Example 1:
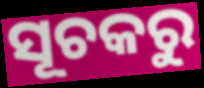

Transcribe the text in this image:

ସୂଚକରୁ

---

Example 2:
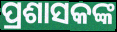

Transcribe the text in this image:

ପ୍ରଶାସକଙ୍କ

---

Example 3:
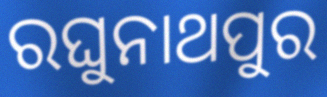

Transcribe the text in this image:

ରଘୁନାଥପୁର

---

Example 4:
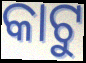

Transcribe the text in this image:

କାଟୁ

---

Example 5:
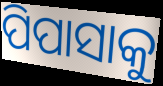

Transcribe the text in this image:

ପିପାସାକୁ